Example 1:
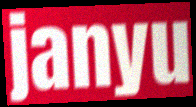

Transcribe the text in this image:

janyu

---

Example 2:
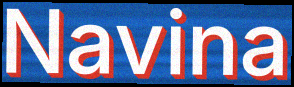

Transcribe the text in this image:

Navina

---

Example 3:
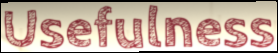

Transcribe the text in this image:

Usefulness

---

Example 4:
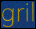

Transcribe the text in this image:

gril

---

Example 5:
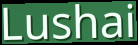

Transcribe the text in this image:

Lushai